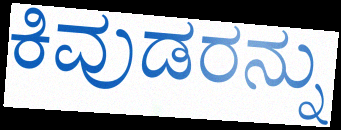
ಕಿವುಡರನ್ನು